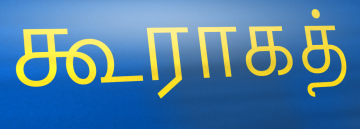
கூராகத்